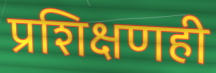
प्रशिक्षणही